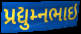
પ્રદ્યુમ્નભાઇ